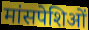
मांसपेशिओं